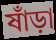
ষাঁড়া